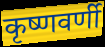
कृष्णवर्णी